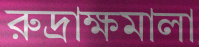
রুদ্রাক্ষমালা